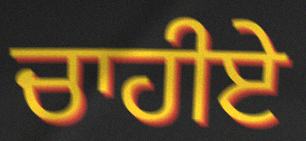
ਚਾਹੀਏ